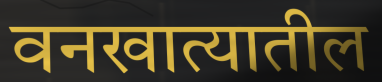
वनखात्यातील